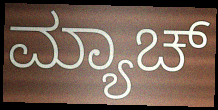
ಮ್ಯಾಚ್